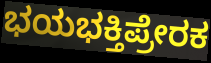
ಭಯಭಕ್ತಿಪ್ರೇರಕ